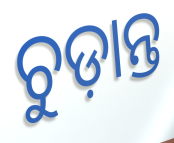
ଚୁଡ଼ାନ୍ତ